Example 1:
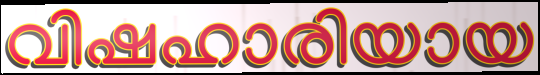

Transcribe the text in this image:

വിഷഹാരിയായ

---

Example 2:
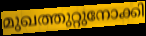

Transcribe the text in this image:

മുഖത്തുറ്റുനോക്കി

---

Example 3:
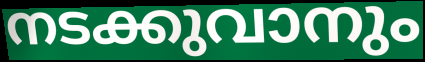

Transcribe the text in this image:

നടക്കുവാനും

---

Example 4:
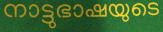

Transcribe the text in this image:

നാട്ടുഭാഷയുടെ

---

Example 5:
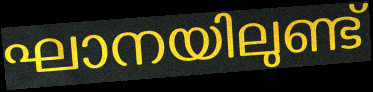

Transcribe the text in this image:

ഘാനയിലുണ്ട്